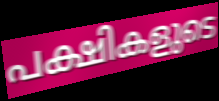
പക്ഷികളുടെ